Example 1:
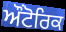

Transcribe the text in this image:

ਔਂਟੋਰਿਕ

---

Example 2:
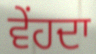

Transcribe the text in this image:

ਵੇਂਹਦਾ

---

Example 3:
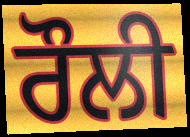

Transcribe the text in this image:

ਰੌਲੀ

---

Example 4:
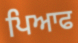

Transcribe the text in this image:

ਪਿਆਫ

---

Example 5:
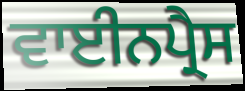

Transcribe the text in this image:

ਵਾਈਨਪ੍ਰੈਸ